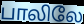
பாலிலே